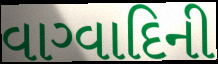
વાગ્વાદિની